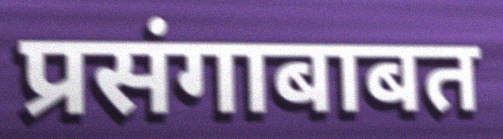
प्रसंगाबाबत